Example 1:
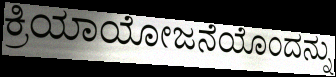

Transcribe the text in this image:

ಕ್ರಿಯಾಯೋಜನೆಯೊಂದನ್ನು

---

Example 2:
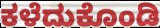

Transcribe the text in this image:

ಕಳೆದುಕೊಂಡಿ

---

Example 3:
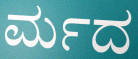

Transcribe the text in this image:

ರ್ಮದ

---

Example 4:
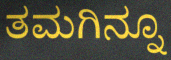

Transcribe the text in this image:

ತಮಗಿನ್ನೂ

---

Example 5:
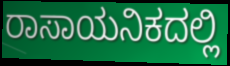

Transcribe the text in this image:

ರಾಸಾಯನಿಕದಲ್ಲಿ